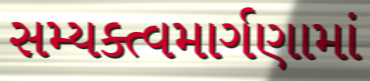
સમ્યક્ત્વમાર્ગણામાં